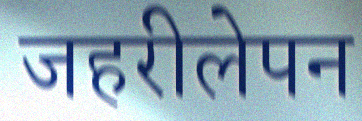
जहरीलेपन